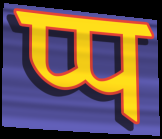
प्प